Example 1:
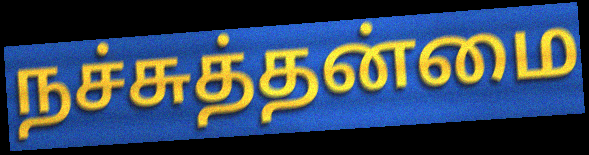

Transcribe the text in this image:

நச்சுத்தன்மை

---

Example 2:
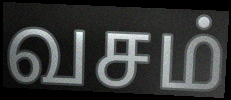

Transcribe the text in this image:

வசம்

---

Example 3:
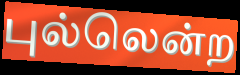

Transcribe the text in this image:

புல்லென்ற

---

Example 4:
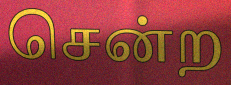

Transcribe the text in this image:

சென்ற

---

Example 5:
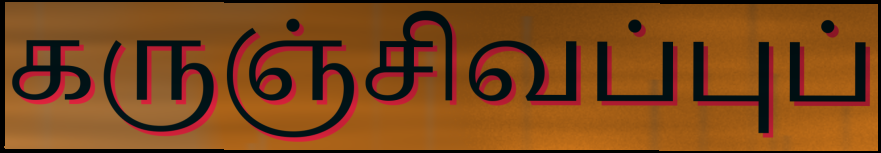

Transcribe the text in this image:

கருஞ்சிவப்புப்